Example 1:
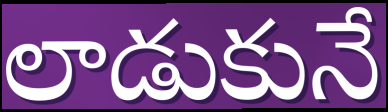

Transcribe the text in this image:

లాడుకునే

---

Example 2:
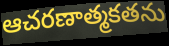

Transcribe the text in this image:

ఆచరణాత్మకతను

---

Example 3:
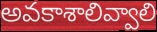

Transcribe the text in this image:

అవకాశాలివ్వాలి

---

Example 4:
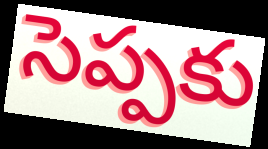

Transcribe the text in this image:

సెప్పకు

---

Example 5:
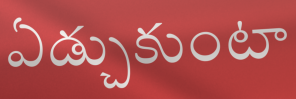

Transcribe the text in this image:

ఏడ్చుకుంటా